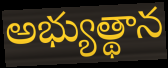
అభ్యుత్థాన